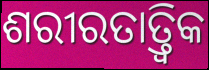
ଶରୀରତାତ୍ତ୍ଵିକ